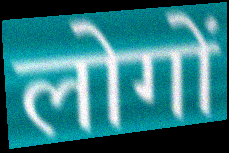
लोगों